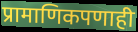
प्रामाणिकपणाही